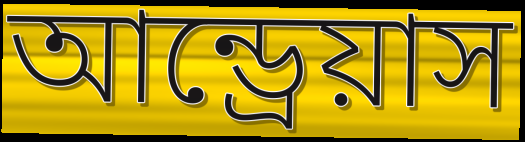
আন্ড্রেয়াস